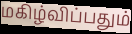
மகிழ்விப்பதும்